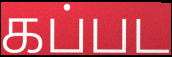
கப்பட